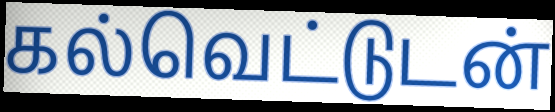
கல்வெட்டுடன்